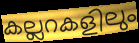
കല്ലറകളിലും